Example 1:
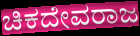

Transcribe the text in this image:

ಚಿಕದೇವರಾಜ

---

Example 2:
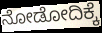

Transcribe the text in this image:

ನೋಡೋದಿಕ್ಕೆ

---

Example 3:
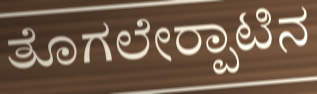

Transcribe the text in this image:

ತೊಗಲೇರ‍್ಪಾಟಿನ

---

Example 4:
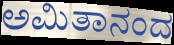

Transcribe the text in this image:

ಅಮಿತಾನಂದ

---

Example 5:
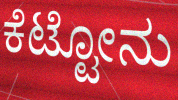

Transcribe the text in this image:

ಕೆಟ್ಟೋನು